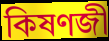
কিষণজী